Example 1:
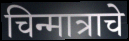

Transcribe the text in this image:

चिन्मात्राचे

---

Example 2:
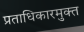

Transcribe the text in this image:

प्रताधिकारमुक्त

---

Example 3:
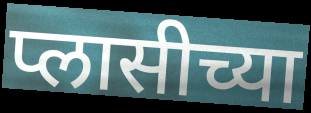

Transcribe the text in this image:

प्लासीच्या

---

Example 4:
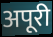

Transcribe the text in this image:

अपूरी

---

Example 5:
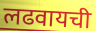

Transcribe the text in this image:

लढवायची